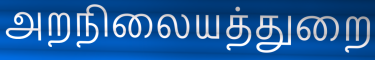
அறநிலையத்துறை